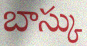
బాస్కు